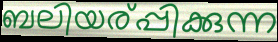
ബലിയര്പ്പിക്കുന്ന